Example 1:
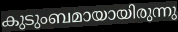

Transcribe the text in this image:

കുടുംബമായായിരുന്നു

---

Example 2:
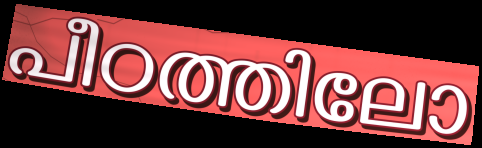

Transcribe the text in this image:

പീഠത്തിലോ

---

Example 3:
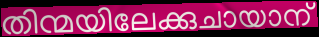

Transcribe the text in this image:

തിന്മയിലേക്കുചായാന്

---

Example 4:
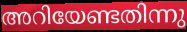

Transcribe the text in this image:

അറിയേണ്ടതിന്നു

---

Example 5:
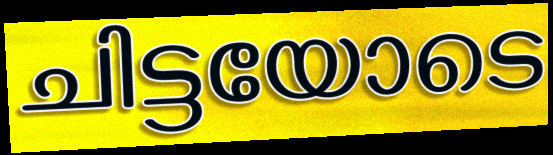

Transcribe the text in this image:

ചിട്ടയോടെ